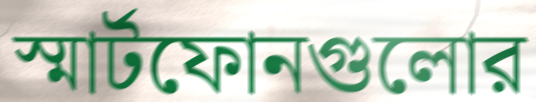
স্মার্টফোনগুলোর